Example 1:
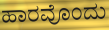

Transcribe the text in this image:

ಹಾರವೊಂದು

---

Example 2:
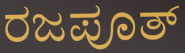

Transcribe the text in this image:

ರಜಪೂತ್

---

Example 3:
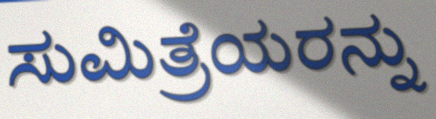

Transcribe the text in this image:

ಸುಮಿತ್ರೆಯರನ್ನು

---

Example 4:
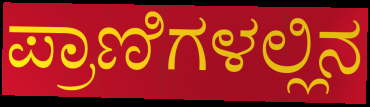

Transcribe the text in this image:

ಪ್ರಾಣಿಗಳಲ್ಲಿನ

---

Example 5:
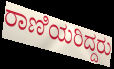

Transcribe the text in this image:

ರಾಣಿಯರಿದ್ದರು